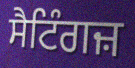
ਸੈਟਿੰਗਜ਼